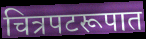
चित्रपटरूपात